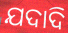
ଯଦାଦି